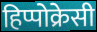
हिप्पोक्रेसी